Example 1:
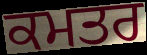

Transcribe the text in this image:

ਕਮਤਰ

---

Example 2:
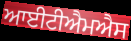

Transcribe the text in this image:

ਆਈਟੀਐਮਐਸ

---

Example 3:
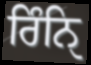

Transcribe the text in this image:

ਰਿੰਨਿੑ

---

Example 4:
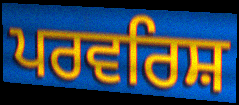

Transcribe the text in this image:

ਪਰਵਰਿਸ਼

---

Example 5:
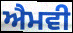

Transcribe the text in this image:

ਐਮਵੀ